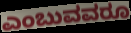
ಎಂಬುವವರೂ